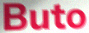
Buto